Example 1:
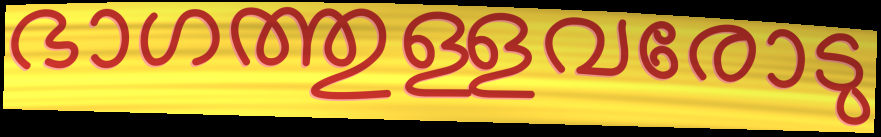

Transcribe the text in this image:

ഭാഗത്തുള്ളവരോടു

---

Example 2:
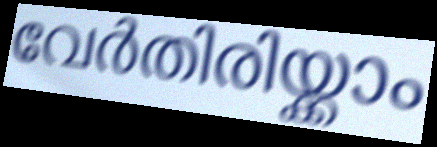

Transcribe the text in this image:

വേർതിരിയ്ക്കാം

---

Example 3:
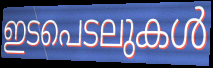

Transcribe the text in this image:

ഇടപെടലുകൾ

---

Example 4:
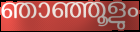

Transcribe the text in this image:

ഞാഞ്ഞൂളും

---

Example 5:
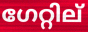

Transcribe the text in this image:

ഗേറ്റില്